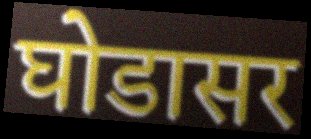
घोडासर